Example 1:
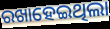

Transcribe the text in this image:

ରଖାହେଇଥିଲା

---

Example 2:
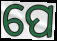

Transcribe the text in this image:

ପେ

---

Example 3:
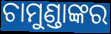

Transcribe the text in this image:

ଚାମୁଣ୍ଡାଙ୍କର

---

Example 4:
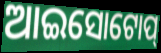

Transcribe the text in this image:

ଆଇସୋଟୋପ୍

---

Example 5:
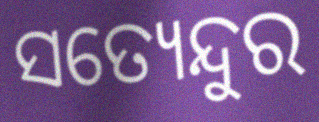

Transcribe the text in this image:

ସତ୍ୟେନ୍ଦୁର